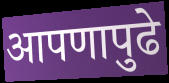
आपणापुढे